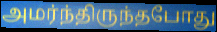
அமர்ந்திருந்தபோது